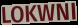
LOKWNI